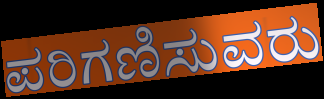
ಪರಿಗಣಿಸುವರು